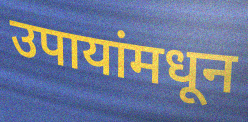
उपायांमधून